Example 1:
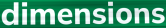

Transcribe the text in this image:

dimensions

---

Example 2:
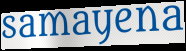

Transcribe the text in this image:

samayena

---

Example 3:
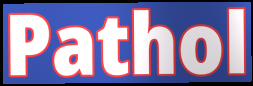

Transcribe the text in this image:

Pathol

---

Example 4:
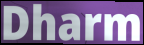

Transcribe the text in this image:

Dharm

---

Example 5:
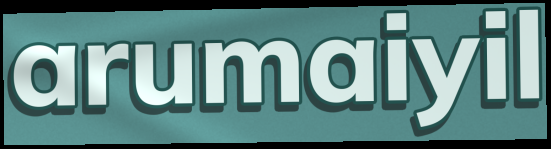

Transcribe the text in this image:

arumaiyil